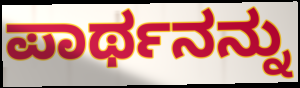
ಪಾರ್ಥನನ್ನು